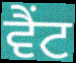
ਵੈਂਟ